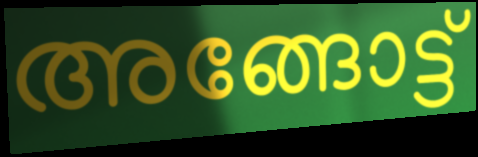
അങ്ങോട്ട്